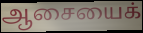
ஆசையைக்